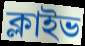
ক্লাইভ